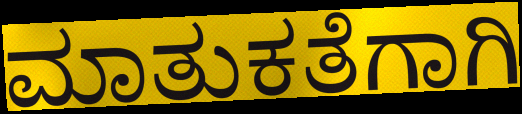
ಮಾತುಕತೆಗಾಗಿ